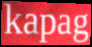
kapag